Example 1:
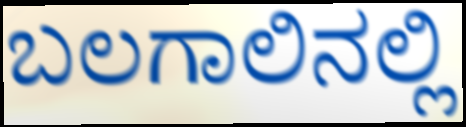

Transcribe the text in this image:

ಬಲಗಾಲಿನಲ್ಲಿ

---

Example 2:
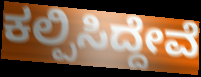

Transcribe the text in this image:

ಕಲ್ಪಿಸಿದ್ದೇವೆ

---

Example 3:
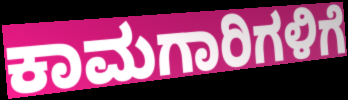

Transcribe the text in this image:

ಕಾಮಗಾರಿಗಳಿಗೆ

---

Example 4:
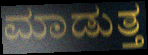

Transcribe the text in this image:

ಮಾಡುತ್ತ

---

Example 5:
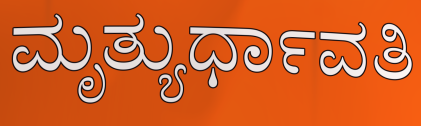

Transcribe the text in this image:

ಮೃತ್ಯುರ್ಧಾವತಿ